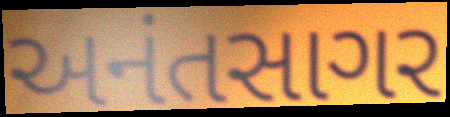
અનંતસાગર